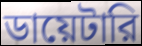
ডায়েটারি